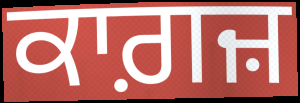
ਕਾਗ਼ਜ਼